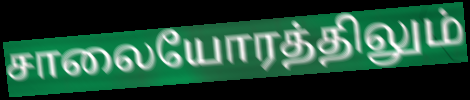
சாலையோரத்திலும்